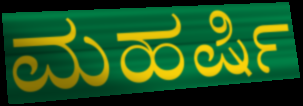
ಮಹರ್ಷಿ